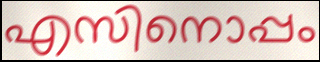
എസിനൊപ്പം